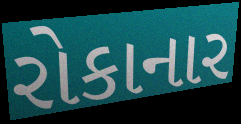
રોકાનાર